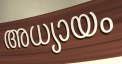
അധ്യായം